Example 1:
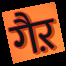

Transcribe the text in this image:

गैऱ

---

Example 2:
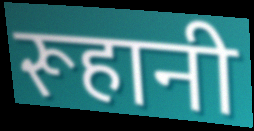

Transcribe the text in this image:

रूहानी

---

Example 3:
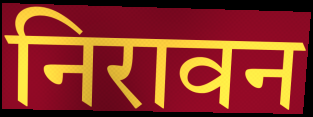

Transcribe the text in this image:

निरावन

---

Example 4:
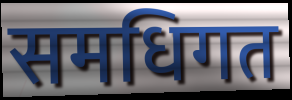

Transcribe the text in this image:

समधिगत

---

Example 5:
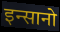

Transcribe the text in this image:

इन्सानो